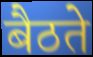
बैठते